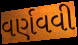
વર્ણવવી